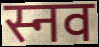
स्नव